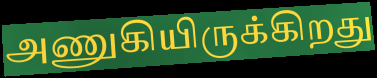
அணுகியிருக்கிறது